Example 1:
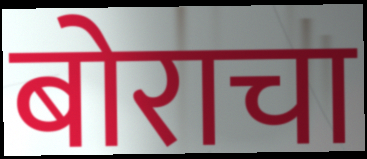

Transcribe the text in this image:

बोराचा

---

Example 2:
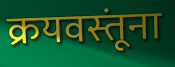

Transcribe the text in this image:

क्रयवस्तूंना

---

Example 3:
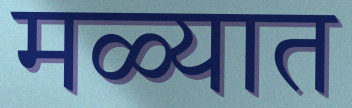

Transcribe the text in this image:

मळ्यात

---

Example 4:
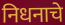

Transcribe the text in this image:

निधनाचे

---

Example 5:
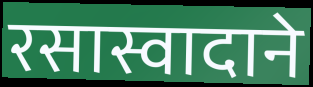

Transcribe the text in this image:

रसास्वादाने